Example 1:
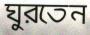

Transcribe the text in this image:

ঘুরতেন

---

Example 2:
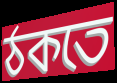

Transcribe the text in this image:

ঠকতে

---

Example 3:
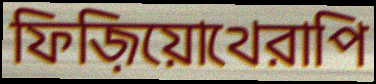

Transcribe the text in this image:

ফিজ়িয়োথেরাপি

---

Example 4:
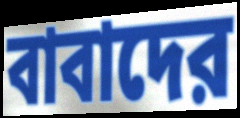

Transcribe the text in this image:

বাবাদের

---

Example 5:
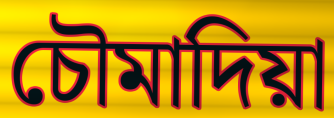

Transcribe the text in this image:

চৌমাদিয়া